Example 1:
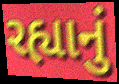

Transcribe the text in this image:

રહ્યાનું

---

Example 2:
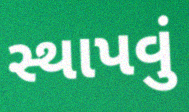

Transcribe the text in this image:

સ્થાપવું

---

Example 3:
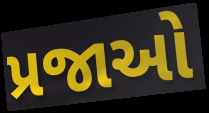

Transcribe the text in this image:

પ્રજાઓ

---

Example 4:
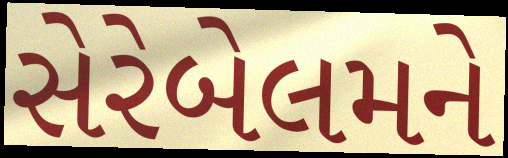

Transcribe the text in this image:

સેરેબેલમને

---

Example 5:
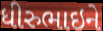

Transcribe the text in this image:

ધીરુભાઇને